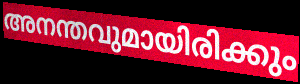
അനന്തവുമായിരിക്കും